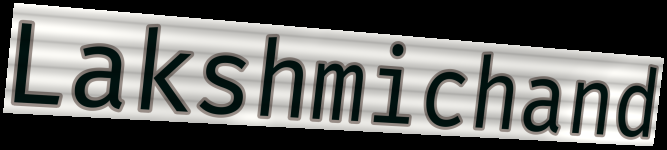
Lakshmichand